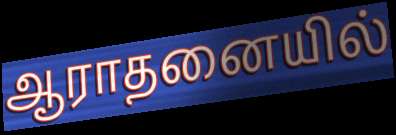
ஆராதனையில்